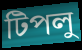
টিপলু